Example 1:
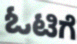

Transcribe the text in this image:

ಓಟಿಗೆ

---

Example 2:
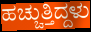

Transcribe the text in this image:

ಹಚ್ಚುತ್ತಿದ್ದಳು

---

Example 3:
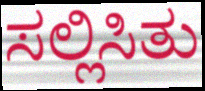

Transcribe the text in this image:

ಸಲ್ಲಿಸಿತು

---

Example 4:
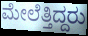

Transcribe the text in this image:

ಮೇಲೆತ್ತಿದ್ದರು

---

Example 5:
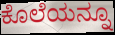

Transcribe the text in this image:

ಕೊಲೆಯನ್ನೂ